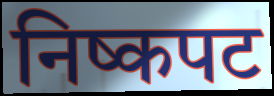
निष्कपट